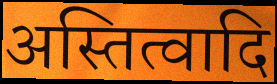
अस्तित्वादि